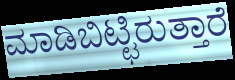
ಮಾಡಿಬಿಟ್ಟಿರುತ್ತಾರೆ